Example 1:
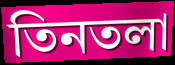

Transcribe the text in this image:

তিনতলা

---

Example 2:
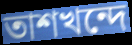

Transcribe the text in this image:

তাশখন্দে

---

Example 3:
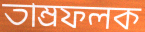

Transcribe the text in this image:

তাম্রফলক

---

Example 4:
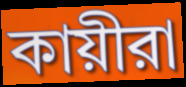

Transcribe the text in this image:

কায়ীরা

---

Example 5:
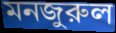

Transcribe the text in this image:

মনজুরুল